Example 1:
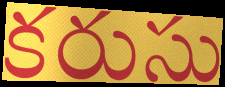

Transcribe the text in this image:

కరుసు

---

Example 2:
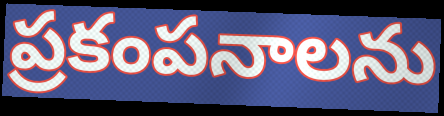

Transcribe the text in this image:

ప్రకంపనాలను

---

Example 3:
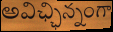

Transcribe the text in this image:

అవిఛ్ఛిన్నంగా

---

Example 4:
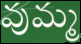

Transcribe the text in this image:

వుమ్మ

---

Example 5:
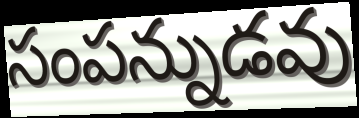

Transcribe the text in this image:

సంపన్నుడవు